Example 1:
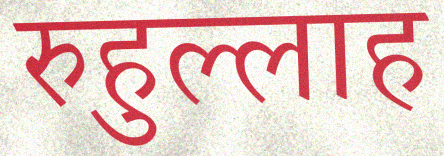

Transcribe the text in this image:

रुहुल्लाह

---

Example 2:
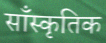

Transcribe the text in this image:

साँस्कृतिक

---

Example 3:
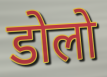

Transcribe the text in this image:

डोलो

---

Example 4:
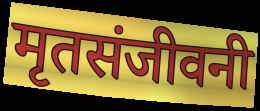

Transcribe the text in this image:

मृतसंजीवनी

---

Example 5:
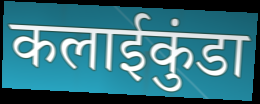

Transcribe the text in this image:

कलाईकुंडा